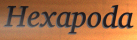
Hexapoda